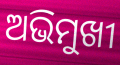
ଅଭିମୁଖୀ